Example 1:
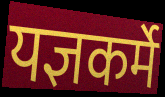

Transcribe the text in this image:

यज्ञकर्मे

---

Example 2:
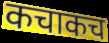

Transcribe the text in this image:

कचाकच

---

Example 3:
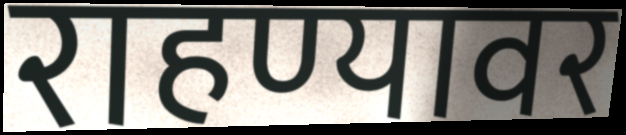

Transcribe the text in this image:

राहण्यावर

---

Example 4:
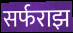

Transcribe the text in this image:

सर्फराझ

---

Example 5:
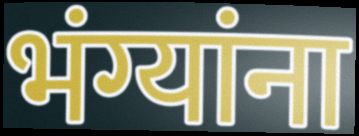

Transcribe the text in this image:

भंग्यांना